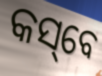
କସ୍‌ବେ